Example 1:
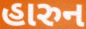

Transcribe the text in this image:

હારુન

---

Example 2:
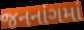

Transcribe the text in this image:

જનનાંગમાં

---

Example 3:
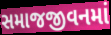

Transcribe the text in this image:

સમાજજીવનમાં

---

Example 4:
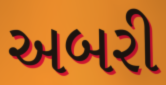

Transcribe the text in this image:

અબરી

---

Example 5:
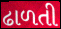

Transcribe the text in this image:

ઢાળતી